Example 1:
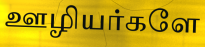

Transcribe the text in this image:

ஊழியர்களே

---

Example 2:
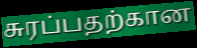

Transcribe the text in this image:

சுரப்பதற்கான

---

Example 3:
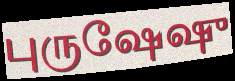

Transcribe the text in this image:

புருஷேஷு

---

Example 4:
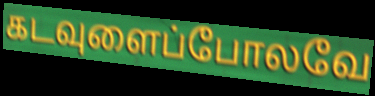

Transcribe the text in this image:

கடவுளைப்போலவே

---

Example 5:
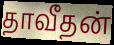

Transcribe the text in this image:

தாவீதன்